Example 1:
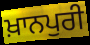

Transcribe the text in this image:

ਖ਼ਾਨਪੁਰੀ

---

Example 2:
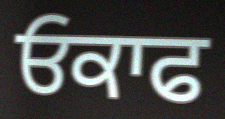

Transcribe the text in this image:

ਓਕਾਫ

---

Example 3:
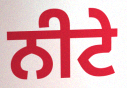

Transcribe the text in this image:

ਨੀਟੇ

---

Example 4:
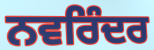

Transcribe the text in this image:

ਨਵਰਿੰਦਰ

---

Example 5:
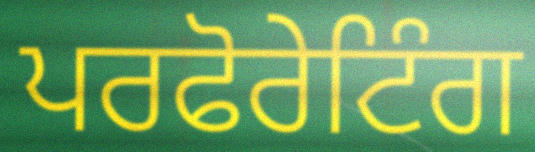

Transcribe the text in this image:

ਪਰਫੋਰੇਟਿੰਗ